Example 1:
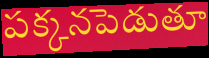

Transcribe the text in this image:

పక్కనపెడుతూ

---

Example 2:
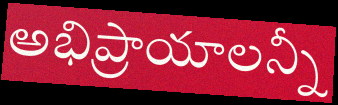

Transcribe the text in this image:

అభిప్రాయాలన్నీ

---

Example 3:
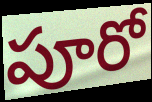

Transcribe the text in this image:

పూరో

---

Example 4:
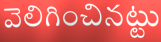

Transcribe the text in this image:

వెలిగించినట్టు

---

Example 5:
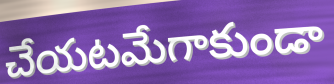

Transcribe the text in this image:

చేయటమేగాకుండా